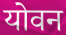
योवन